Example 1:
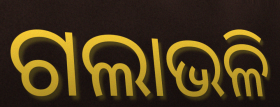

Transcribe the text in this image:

ଗଲାଭଳି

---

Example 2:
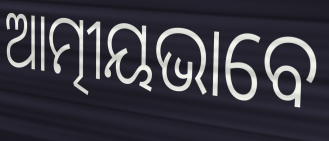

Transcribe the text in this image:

ଆତ୍ମୀୟଭାବେ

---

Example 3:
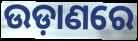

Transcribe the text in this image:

ଉଡ଼ାଣରେ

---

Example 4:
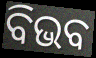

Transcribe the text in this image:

ବିଭବ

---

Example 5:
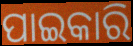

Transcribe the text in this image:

ପାଇକାରି